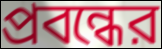
প্রবন্ধের